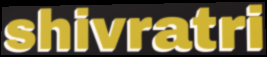
shivratri